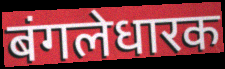
बंगलेधारक